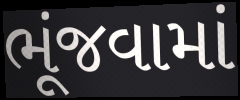
ભૂંજવામાં